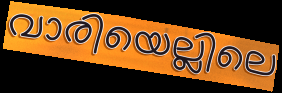
വാരിയെല്ലിലെ